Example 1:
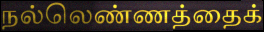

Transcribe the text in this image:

நல்லெண்ணத்தைக்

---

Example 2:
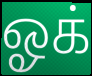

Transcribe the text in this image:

ஓக்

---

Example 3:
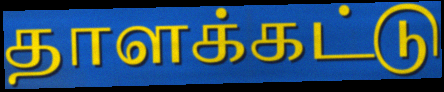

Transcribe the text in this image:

தாளக்கட்டு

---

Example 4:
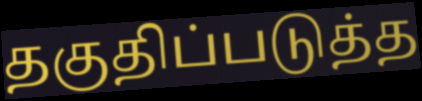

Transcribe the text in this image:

தகுதிப்படுத்த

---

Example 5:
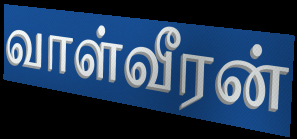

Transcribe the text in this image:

வாள்வீரன்